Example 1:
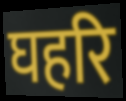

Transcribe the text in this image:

घहरि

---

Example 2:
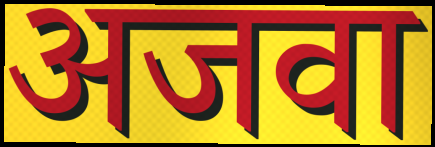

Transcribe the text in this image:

अजवा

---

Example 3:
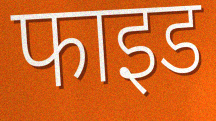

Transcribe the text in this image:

फाइड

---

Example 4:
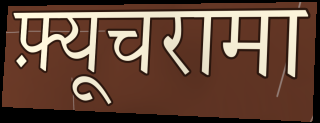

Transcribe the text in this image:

फ़्यूचरामा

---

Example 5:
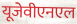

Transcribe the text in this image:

यूजेवीएनएल